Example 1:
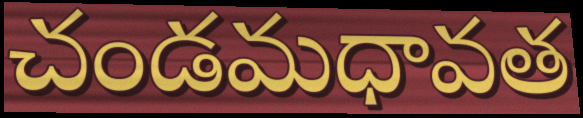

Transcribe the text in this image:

చండమధావత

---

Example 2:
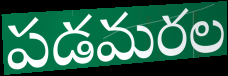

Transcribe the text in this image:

పడమరల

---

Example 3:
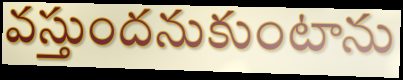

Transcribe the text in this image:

వస్తుందనుకుంటాను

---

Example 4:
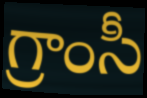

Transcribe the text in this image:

గ్రాంసీ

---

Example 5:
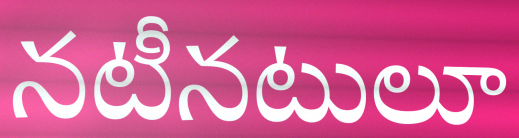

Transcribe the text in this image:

నటీనటులూ